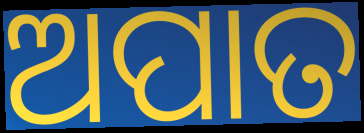
ଅପାତ